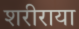
शरीराया